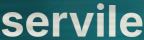
servile